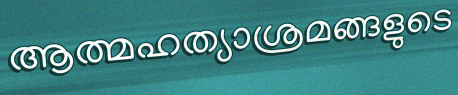
ആത്മഹത്യാശ്രമങ്ങളുടെ